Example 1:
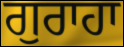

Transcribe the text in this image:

ਗੁਰਾਹਾ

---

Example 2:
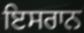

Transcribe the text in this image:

ਇਸਰਾਨ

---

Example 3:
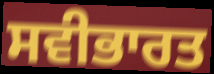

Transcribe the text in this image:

ਸਵੀਭਾਰਤ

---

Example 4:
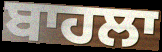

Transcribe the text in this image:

ਬਾਹਲਾ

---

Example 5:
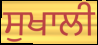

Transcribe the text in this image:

ਸੁਖਾਲੀ